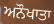
ਅਨੌਖਾਤਾ